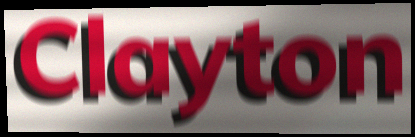
Clayton